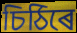
চিঠিৰে